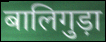
बालिगुड़ा